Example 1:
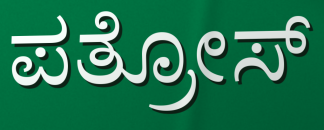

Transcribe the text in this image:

ಪತ್ರೋಸ್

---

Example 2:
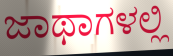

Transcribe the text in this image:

ಜಾಥಾಗಳಲ್ಲಿ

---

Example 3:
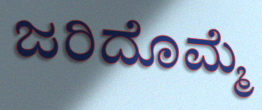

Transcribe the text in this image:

ಜರಿದೊಮ್ಮೆ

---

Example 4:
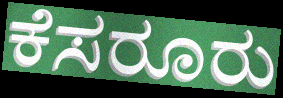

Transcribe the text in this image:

ಕೆಸರೂರು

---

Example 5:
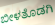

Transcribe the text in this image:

ಬೀಳತೊಡಗಿ